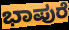
ಭಾಪುರೆ